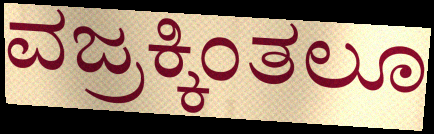
ವಜ್ರಕ್ಕಿಂತಲೂ